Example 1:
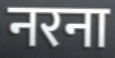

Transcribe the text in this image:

नरना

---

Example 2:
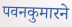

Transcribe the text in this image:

पवनकुमारने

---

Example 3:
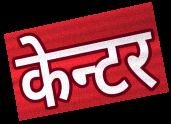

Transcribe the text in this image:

केन्टर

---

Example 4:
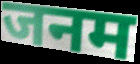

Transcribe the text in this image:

जनम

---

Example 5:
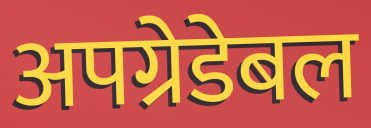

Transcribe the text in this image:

अपग्रेडेबल